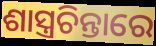
ଶାସ୍ତ୍ରଚିନ୍ତାରେ